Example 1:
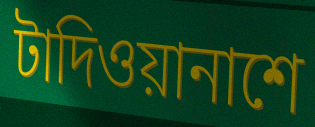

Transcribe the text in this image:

টাদিওয়ানাশে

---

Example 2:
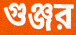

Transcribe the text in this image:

গুঞ্জর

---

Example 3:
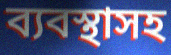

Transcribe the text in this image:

ব্যবস্থাসহ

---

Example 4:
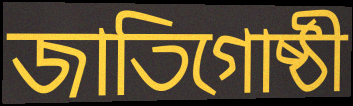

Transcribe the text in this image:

জাতিগোষ্ঠী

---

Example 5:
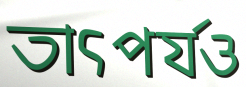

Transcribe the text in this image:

তাৎপর্যও